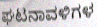
ಘಟನಾವಳಿಗಳ